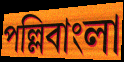
পল্লিবাংলা